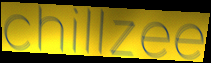
chillzee